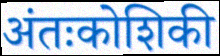
अंतःकोशिकी